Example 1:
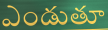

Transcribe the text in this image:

ఎండుతూ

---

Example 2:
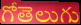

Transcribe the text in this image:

గోతెలుగు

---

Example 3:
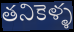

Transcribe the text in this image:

తనికెళ్ళ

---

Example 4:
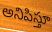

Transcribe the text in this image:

అనిపిస్తూ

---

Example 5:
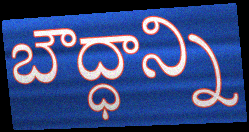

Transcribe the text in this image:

బౌద్ధాన్ని